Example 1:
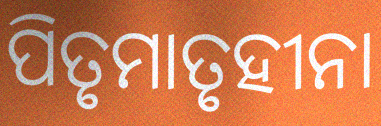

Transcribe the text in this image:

ପିତୃମାତୃହୀନା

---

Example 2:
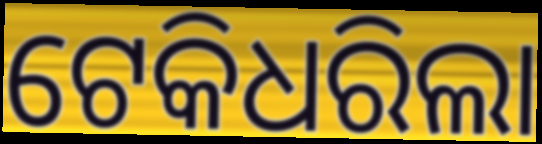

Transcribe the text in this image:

ଟେକିଧରିଲା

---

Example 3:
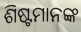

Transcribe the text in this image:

ଶିଷ୍ଟମାନଙ୍କ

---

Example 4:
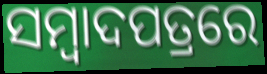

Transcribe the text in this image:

ସମ୍ୱାଦପତ୍ରରେ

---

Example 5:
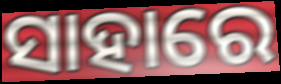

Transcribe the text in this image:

ସାହାରେ